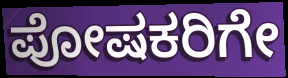
ಪೋಷಕರಿಗೇ